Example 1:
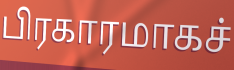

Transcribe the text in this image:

பிரகாரமாகச்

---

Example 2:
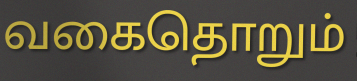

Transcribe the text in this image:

வகைதொறும்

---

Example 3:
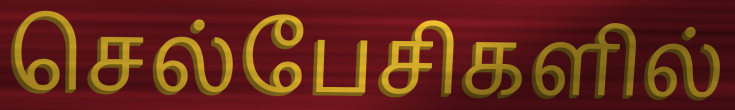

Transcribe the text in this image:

செல்பேசிகளில்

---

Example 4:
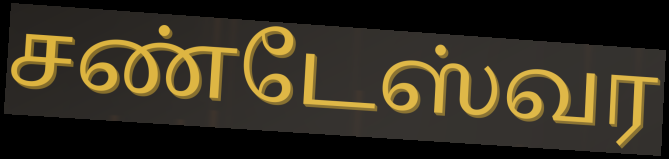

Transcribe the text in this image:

சண்டேஸ்வர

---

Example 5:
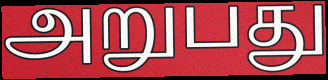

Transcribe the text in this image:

அறுபது